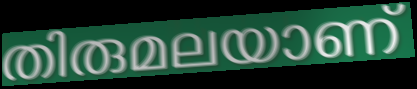
തിരുമലയാണ്